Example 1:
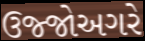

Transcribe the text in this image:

ઉજ્જોઅગરે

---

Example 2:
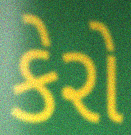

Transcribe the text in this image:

કેરો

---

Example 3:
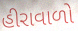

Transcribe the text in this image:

હીરાવાળો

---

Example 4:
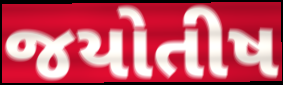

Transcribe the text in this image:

જયોતીષ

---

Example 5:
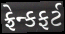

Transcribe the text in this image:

ફ્રેન્કફર્ટ